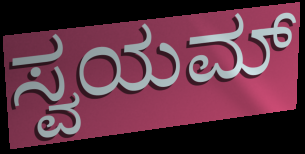
ಸ್ವಯಮ್